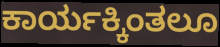
ಕಾರ್ಯಕ್ಕಿಂತಲೂ